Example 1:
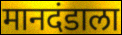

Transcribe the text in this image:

मानदंडाला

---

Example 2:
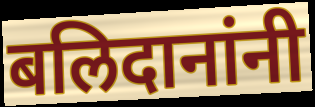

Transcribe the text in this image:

बलिदानांनी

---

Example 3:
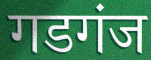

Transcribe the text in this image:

गडगंज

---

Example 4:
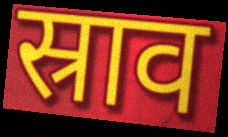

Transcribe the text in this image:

स्राव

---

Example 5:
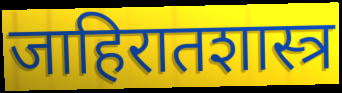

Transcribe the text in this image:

जाहिरातशास्त्र